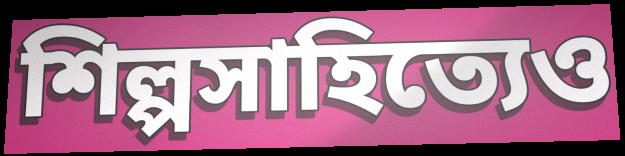
শিল্পসাহিত্যেও